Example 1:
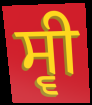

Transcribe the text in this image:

ਸ੍ਵੀ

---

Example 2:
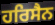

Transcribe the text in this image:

ਹਰਿਸੈਨ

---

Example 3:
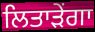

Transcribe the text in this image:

ਲਿਤਾੜੇਂਗਾ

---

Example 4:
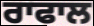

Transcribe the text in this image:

ਰਾਫਾਲ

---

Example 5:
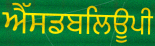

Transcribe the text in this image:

ਐੱਸਡਬਲਿਊਪੀ